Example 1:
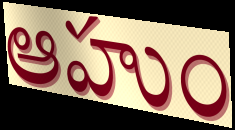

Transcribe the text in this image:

ఆహుం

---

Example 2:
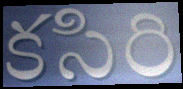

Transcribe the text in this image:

కసిరి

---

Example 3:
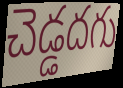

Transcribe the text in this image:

చెడ్డదగు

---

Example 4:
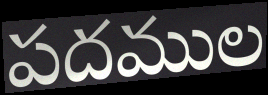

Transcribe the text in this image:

పదముల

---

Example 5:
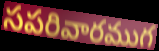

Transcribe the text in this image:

సపరివారముగ